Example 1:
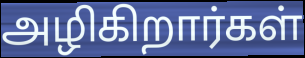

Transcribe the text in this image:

அழிகிறார்கள்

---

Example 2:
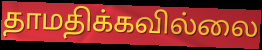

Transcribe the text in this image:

தாமதிக்கவில்லை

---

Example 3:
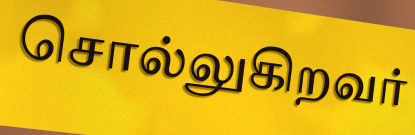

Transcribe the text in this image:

சொல்லுகிறவர்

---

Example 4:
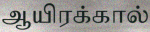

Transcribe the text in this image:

ஆயிரக்கால்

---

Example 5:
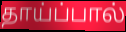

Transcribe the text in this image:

தாய்ப்பால்